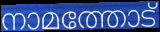
നാമത്തോട്